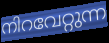
നിറവേറ്റുന്ന